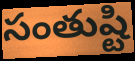
సంతుష్టి